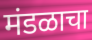
मंडळाचा